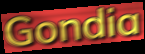
Gondia